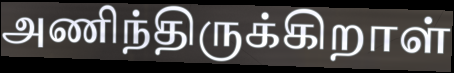
அணிந்திருக்கிறாள்